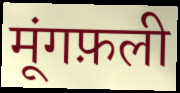
मूंगफ़ली